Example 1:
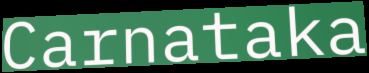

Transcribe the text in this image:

Carnataka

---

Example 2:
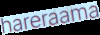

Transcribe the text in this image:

hareraama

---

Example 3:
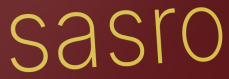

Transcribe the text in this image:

sasro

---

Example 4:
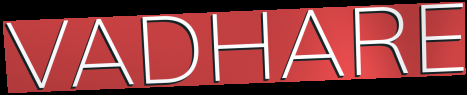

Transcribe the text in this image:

VADHARE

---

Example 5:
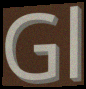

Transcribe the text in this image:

Gl